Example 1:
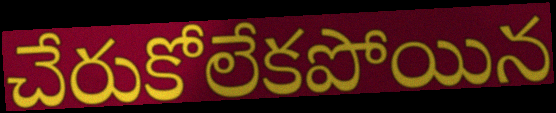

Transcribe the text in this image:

చేరుకోలేకపోయిన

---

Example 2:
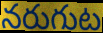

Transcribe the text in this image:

నరుగుట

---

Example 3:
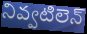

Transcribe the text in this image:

నివ్వటిలెన్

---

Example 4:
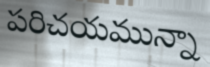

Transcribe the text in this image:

పరిచయమున్నా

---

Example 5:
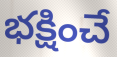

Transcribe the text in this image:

భక్షించే